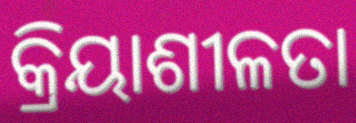
କ୍ରିୟାଶୀଳତା